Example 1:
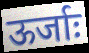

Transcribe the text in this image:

ऊर्जाः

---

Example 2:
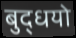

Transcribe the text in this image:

बुद्धयो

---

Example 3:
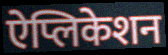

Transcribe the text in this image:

ऐप्लिकेशन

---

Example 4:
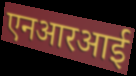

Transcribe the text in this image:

एनआरआई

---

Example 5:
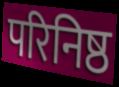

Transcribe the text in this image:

परिनिष्ठ